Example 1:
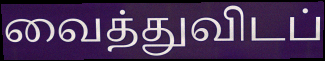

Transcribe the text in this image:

வைத்துவிடப்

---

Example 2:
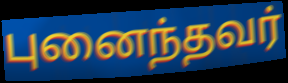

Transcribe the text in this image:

புனைந்தவர்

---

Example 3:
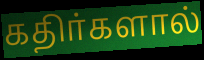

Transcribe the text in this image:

கதிர்களால்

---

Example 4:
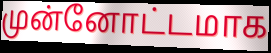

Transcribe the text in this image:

முன்னோட்டமாக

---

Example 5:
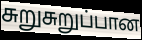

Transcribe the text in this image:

சுறுசுறுப்பான